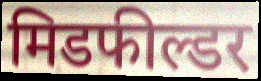
मिडफील्डर